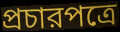
প্রচারপত্রে